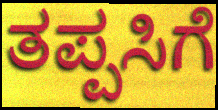
ತಪ್ಪಸಿಗೆ